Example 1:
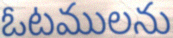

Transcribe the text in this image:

ఓటములను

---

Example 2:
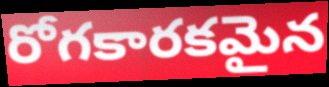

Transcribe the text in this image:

రోగకారకమైన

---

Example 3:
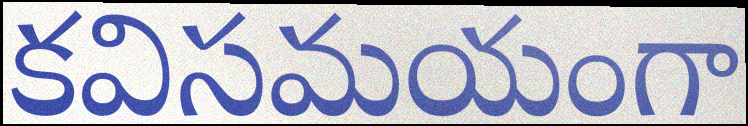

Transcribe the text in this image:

కవిసమయంగా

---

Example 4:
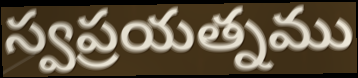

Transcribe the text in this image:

స్వప్రయత్నము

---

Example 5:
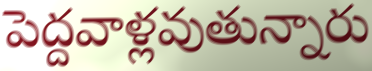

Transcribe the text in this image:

పెద్దవాళ్లవుతున్నారు